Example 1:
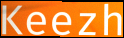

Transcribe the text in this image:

Keezh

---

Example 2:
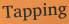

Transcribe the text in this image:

Tapping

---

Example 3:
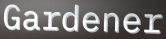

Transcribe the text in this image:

Gardener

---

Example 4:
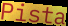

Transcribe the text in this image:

Pista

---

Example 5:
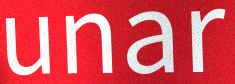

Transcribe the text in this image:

unar